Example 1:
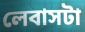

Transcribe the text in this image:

লেবাসটা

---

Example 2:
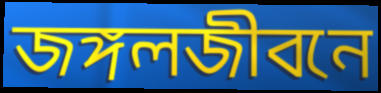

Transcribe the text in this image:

জঙ্গলজীবনে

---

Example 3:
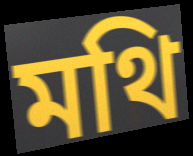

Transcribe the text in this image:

মথি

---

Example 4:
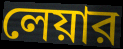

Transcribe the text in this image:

লেয়ার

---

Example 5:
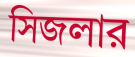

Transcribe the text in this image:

সিজলার